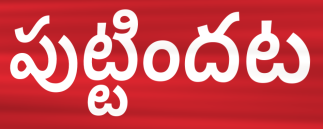
పుట్టిందట